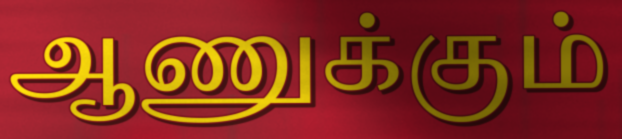
ஆணுக்கும்